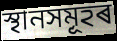
স্থানসমূহৰ